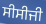
ਸੀਸੀਜੀ